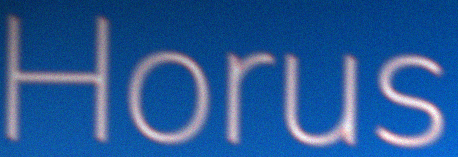
Horus